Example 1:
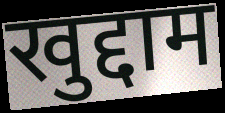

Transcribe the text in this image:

खुद्दाम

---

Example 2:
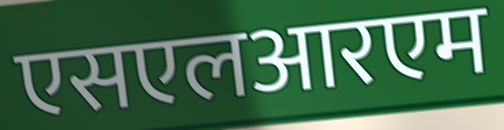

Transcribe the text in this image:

एसएलआरएम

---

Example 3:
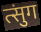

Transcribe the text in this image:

त्सुंग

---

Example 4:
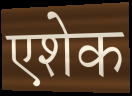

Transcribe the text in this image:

एशेक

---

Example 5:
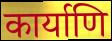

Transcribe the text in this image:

कार्याणि